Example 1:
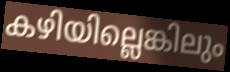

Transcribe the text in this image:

കഴിയില്ലെങ്കിലും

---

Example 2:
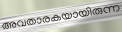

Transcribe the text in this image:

അവതാരകയായിരുന്ന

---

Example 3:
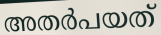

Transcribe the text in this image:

അതർപയത്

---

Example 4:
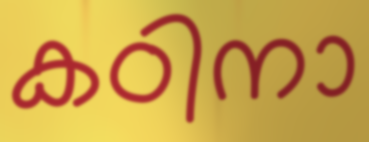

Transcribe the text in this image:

കഠിനാ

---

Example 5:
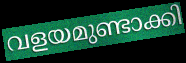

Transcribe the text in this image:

വളയമുണ്ടാക്കി